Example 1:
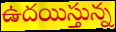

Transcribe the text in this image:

ఉదయిస్తున్న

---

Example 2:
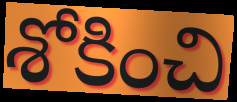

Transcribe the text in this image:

శోకించి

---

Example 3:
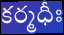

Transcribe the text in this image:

కర్మధీః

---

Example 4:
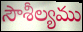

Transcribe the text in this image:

సౌశీల్యము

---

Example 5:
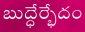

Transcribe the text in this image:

బుద్ధేర్భేదం